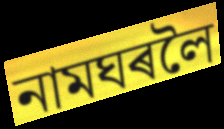
নামঘৰলৈ